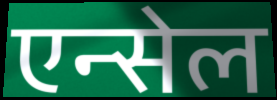
एन्सेल